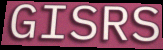
GISRS